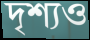
দৃশ্যও